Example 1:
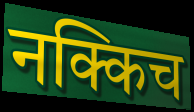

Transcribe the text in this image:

नक्किच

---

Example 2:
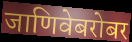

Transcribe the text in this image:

जाणिवेबरोबर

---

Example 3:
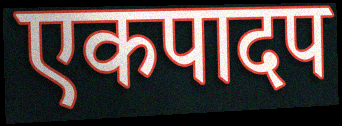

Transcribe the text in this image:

एकपादप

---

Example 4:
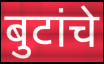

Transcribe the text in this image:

बुटांचे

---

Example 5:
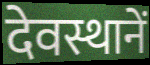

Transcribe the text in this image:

देवस्थानें